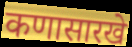
कणासारखे